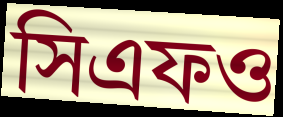
সিএফও